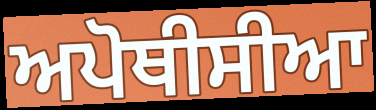
ਅਪੋਥੀਸੀਆ